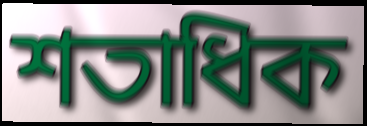
শতাধিক